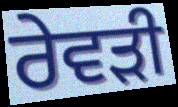
ਰੇਵੜੀ